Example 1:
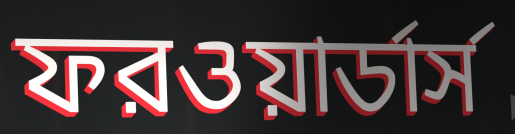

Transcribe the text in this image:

ফরওয়ার্ডার্স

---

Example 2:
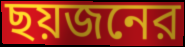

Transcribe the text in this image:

ছয়জনের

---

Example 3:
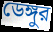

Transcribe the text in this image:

ডেঙ্গুর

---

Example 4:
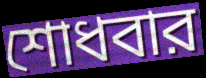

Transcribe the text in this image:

শোধবার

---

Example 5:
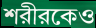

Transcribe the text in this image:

শরীরকেও